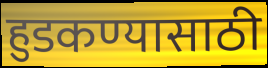
हुडकण्यासाठी